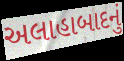
અલાહાબાદનું